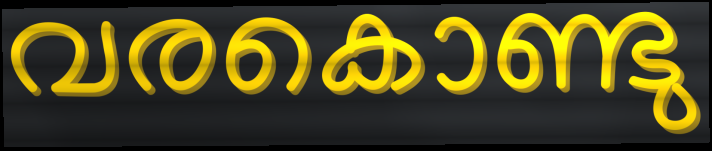
വരകൊണ്ടു